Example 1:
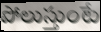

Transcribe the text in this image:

పోలుస్తుంటే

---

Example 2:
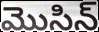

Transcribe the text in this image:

మొసిన్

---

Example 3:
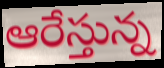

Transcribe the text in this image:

ఆరేస్తున్న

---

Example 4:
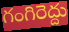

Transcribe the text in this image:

గంగిరెద్దు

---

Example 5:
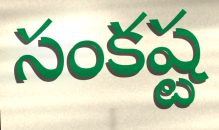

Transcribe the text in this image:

సంకష్ట